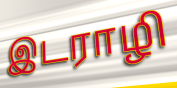
இடராழி